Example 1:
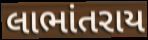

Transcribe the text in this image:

લાભાંતરાય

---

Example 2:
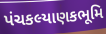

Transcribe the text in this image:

પંચકલ્યાણકભૂમિ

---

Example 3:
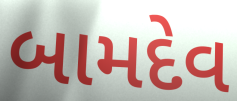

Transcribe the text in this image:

બામદેવ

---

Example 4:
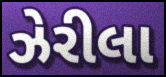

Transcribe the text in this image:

ઝેરીલા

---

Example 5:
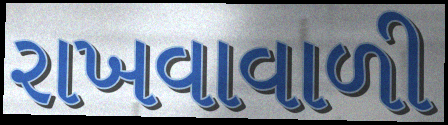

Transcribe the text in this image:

રાખવાવાળી